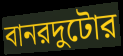
বানরদুটোর